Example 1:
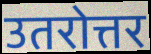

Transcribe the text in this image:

उतरोत्तर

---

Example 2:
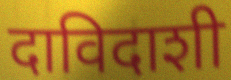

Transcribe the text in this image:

दाविदाशी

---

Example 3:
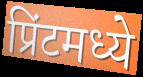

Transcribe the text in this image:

प्रिंटमध्ये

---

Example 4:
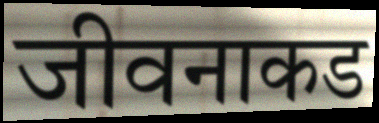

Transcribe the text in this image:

जीवनाकड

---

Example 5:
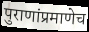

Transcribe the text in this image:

पुराणांप्रमाणेच